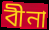
বীনা